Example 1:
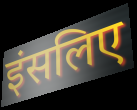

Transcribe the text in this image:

इंसलिए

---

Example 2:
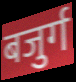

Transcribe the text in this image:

बजुर्ग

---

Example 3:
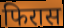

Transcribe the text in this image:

फिरास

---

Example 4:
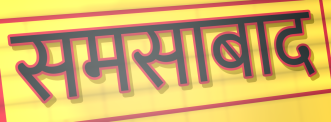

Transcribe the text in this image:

समसाबाद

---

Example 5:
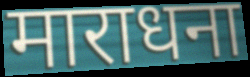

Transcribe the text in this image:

माराधना